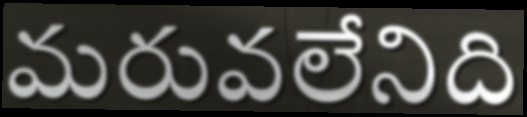
మరువలేనిది